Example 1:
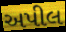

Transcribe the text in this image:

અપીલ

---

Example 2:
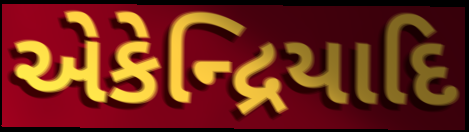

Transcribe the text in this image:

એકેન્દ્રિયાદિ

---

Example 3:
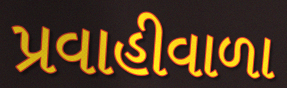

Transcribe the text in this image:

પ્રવાહીવાળા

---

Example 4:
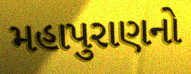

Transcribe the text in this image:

મહાપુરાણનો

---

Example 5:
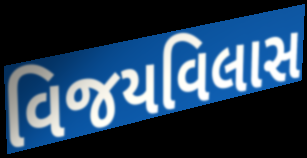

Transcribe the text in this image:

વિજયવિલાસ